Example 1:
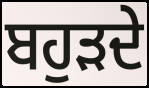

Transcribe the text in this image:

ਬਹੁੜਦੇ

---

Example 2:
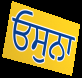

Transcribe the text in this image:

ਓਸੁਨਾ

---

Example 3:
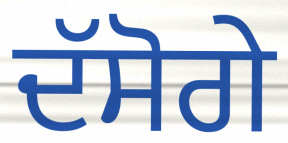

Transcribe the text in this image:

ਦੱਸੋਗੇ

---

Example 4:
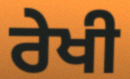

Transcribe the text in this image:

ਰੇਖੀ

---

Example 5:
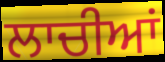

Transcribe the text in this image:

ਲਾਚੀਆਂ